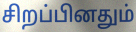
சிறப்பினதும்